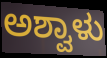
ಅಶ್ವಾಳು